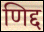
णिद्द